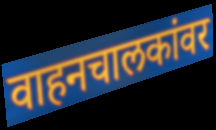
वाहनचालकांवर